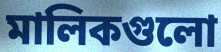
মালিকগুলো